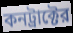
কনট্রাক্টের